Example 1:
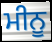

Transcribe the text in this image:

ਮੀਨੂ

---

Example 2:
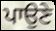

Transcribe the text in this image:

ਪਾਉਣੇ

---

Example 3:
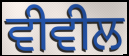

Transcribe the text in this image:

ਵੀਵੀਲ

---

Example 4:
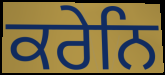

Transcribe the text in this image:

ਕਰੇਨਿ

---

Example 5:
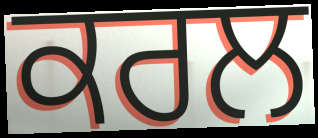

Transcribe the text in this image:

ਕਰਲ